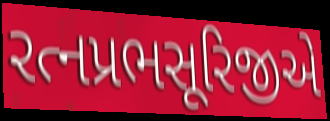
રત્નપ્રભસૂરિજીએ